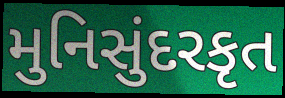
મુનિસુંદરકૃત